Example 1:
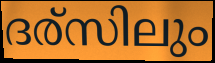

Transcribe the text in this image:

ദര്സിലും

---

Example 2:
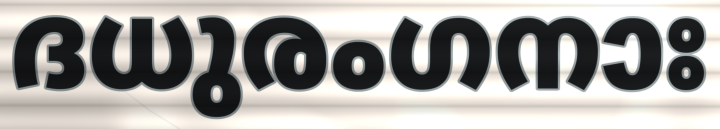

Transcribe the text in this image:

ദധുരംഗനാഃ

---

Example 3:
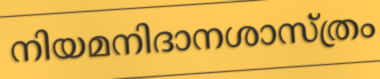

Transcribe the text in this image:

നിയമനിദാനശാസ്ത്രം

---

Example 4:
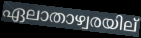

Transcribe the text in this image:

ഏലാതാഴ്വരയില്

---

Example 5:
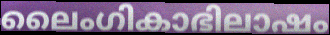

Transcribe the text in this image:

ലൈംഗികാഭിലാഷം